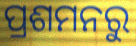
ପ୍ରଶମନରୁ